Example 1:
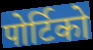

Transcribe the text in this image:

पोर्टिको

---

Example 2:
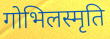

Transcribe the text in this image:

गोभिलस्मृति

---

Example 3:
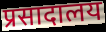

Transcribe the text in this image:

प्रसादालय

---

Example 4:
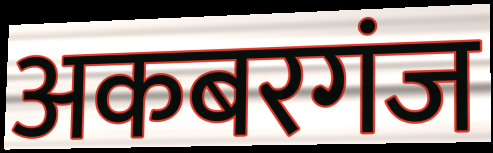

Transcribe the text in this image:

अकबरगंज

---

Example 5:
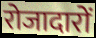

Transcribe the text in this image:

रोजादारों